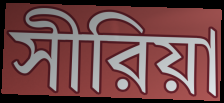
সীরিয়া